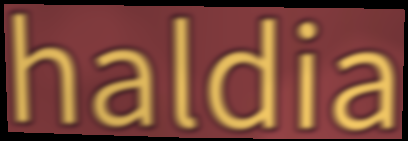
haldia